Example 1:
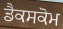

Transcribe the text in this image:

ਡੈਕਸਕੋਮ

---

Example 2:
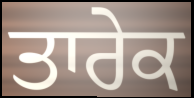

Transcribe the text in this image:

ਤਾਰੇਕ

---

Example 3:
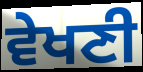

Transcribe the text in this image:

ਵੇਖਣੀ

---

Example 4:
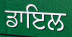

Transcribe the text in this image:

ਡਾਇਲ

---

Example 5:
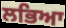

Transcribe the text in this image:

ਲਭਿਆ